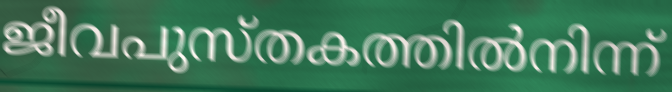
ജീവപുസ്തകത്തിൽനിന്ന്